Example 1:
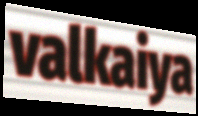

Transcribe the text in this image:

valkaiya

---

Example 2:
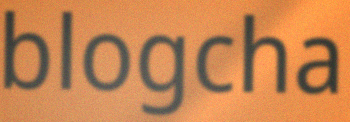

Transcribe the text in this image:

blogcha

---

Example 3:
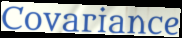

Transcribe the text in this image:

Covariance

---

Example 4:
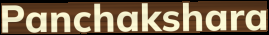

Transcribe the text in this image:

Panchakshara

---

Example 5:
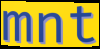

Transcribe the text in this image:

mnt